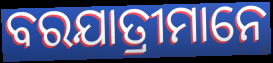
ବରଯାତ୍ରୀମାନେ